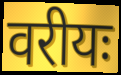
वरीयः